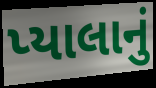
પ્યાલાનું